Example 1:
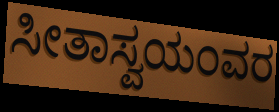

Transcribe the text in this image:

ಸೀತಾಸ್ವಯಂವರ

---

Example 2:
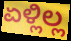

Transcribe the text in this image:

ಏಳ್ಲಿಲ್ಲ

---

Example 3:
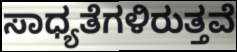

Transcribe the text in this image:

ಸಾಧ್ಯತೆಗಳಿರುತ್ತವೆ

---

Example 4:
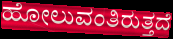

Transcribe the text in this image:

ಹೋಲುವಂತಿರುತ್ತದೆ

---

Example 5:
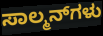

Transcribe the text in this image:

ಸಾಲ್ಮನ್‌ಗಳು